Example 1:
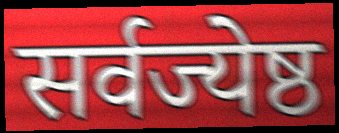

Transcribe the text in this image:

सर्वज्येष्ठ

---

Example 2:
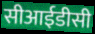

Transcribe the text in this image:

सीआईडीसी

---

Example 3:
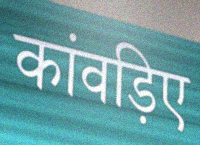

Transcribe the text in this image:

कांवड़िए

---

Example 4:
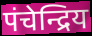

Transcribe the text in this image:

पंचेन्द्रिय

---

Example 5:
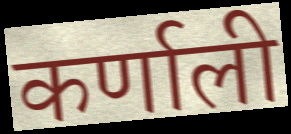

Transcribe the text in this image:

कर्णाली